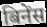
बिनेंस